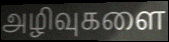
அழிவுகளை